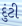
દુંટી